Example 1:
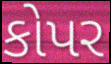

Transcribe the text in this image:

કોપર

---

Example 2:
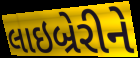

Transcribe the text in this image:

લાઇબ્રેરીને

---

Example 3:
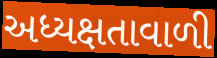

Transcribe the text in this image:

અધ્યક્ષતાવાળી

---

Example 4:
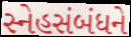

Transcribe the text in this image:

સ્નેહસંબંધને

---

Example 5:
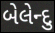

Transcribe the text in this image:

બેલેન્દુ